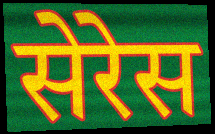
सेरेस